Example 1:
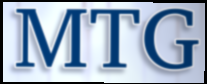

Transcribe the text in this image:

MTG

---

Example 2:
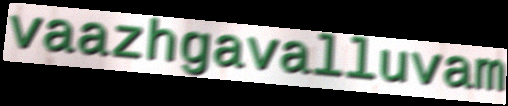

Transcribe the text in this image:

vaazhgavalluvam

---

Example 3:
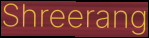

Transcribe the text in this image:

Shreerang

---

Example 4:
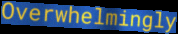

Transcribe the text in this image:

Overwhelmingly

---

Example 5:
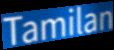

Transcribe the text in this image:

Tamilan